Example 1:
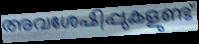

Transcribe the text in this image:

അവശേഷിപ്പുകളുണ്ട്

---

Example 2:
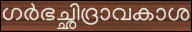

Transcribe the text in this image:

ഗർഭച്ഛിദ്രാവകാശ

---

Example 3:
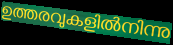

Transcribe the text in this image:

ഉത്തരവുകളിൽനിന്നു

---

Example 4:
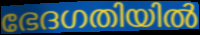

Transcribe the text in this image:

ഭേദഗതിയിൽ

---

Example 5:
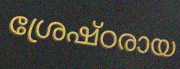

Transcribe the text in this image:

ശ്രേഷ്ഠരായ